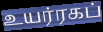
உயர்ரகப்